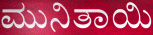
ಮುನಿತಾಯಿ